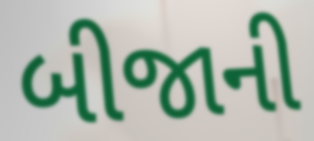
બીજાની